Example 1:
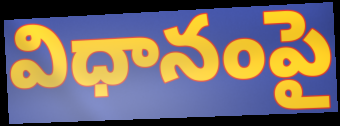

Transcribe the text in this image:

విధానంపై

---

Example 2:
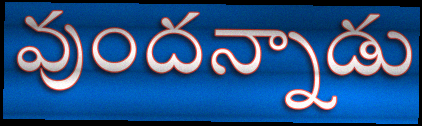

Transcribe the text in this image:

వుందన్నాడు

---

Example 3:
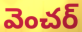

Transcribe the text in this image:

వెంచర్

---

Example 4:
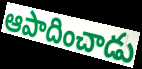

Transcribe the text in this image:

ఆపాదించాడు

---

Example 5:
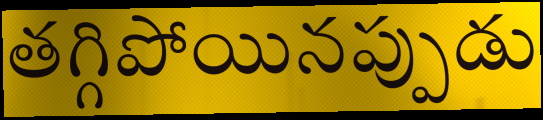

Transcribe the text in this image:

తగ్గిపోయినప్పుడు